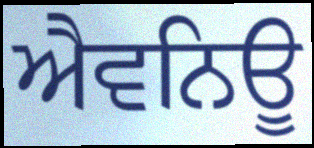
ਐਵਨਿਊ